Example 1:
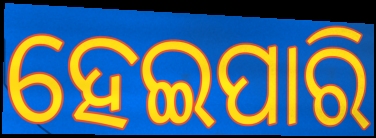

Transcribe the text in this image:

ହେଇପାରି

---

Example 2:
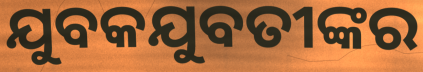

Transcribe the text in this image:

ଯୁବକଯୁବତୀଙ୍କର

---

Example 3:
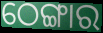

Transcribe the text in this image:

ଠେଙ୍ଗାର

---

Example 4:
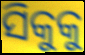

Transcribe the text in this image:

ସିକୁକୁ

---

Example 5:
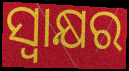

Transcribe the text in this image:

ସ୍ବାକ୍ଷର